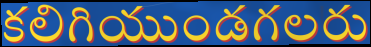
కలిగియుండగలరు